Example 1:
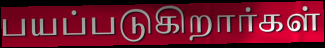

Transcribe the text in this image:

பயப்படுகிறார்கள்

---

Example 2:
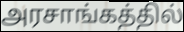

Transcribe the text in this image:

அரசாங்கத்தில்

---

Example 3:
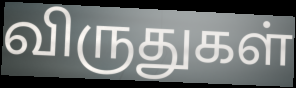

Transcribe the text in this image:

விருதுகள்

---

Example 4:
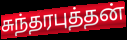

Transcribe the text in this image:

சுந்தரபுத்தன்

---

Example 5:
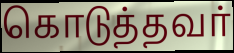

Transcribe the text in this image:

கொடுத்தவர்